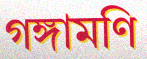
গঙ্গামণি